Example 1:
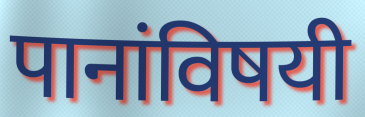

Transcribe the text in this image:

पानांविषयी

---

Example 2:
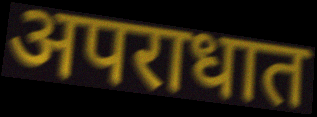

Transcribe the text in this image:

अपराधात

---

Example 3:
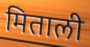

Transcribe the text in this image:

मिताली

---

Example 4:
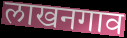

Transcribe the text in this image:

लाखनगाव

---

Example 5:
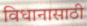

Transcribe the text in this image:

विधानासाठी